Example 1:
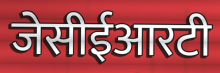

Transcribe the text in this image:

जेसीईआरटी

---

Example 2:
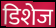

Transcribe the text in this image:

डिशेज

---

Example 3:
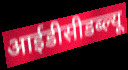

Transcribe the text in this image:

आईडीसीडब्ल्यू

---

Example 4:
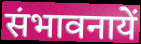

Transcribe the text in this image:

संभावनायें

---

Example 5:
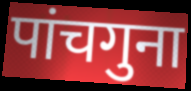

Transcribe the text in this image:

पांचगुना